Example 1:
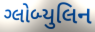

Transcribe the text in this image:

ગ્લોબ્યુલિન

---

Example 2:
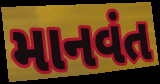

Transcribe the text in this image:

માનવંત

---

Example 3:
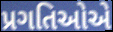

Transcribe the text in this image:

પ્રગતિઓએ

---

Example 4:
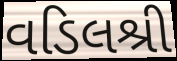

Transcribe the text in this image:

વડિલશ્રી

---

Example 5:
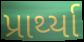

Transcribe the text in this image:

પ્રાર્થ્યા